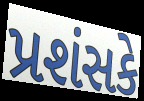
પ્રશંસકે